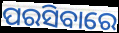
ପରସିବାରେ